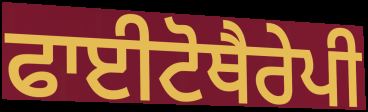
ਫਾਈਟੋਥੈਰੇਪੀ